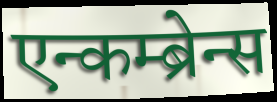
एन्कम्ब्रेन्स